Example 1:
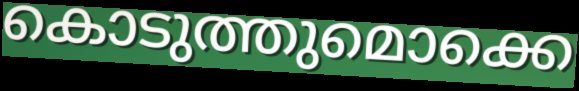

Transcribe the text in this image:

കൊടുത്തുമൊക്കെ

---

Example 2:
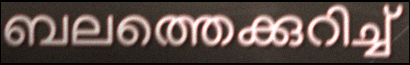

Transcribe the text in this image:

ബലത്തെക്കുറിച്ച്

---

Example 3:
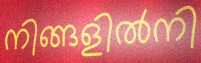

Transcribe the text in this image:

നിങ്ങളിൽനി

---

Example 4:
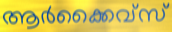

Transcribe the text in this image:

ആർക്കൈവ്സ്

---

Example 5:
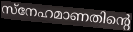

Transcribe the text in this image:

സ്നേഹമാണതിന്റെ